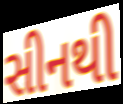
સીનથી